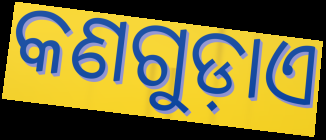
କଣଗୁଡ଼ାଏ